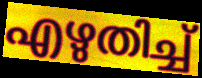
എഴുതിച്ച്